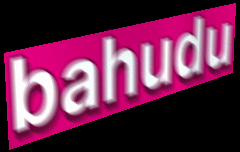
bahudu